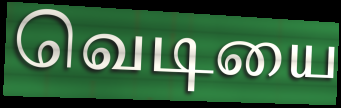
வெடியை